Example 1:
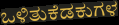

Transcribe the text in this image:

ಒಳಿತುಕೆಡಕುಗಳ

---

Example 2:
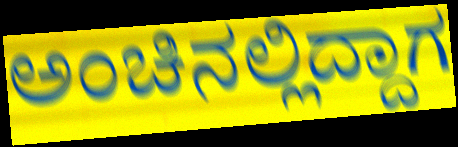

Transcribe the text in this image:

ಅಂಚಿನಲ್ಲಿದ್ದಾಗ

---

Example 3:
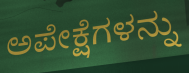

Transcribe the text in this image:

ಅಪೇಕ್ಷೆಗಳನ್ನು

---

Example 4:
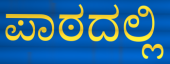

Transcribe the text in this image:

ಪಾಠದಲ್ಲಿ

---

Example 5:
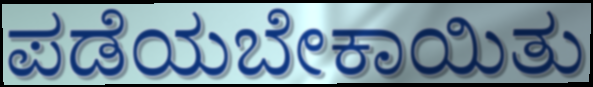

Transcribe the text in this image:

ಪಡೆಯಬೇಕಾಯಿತು